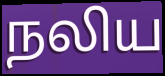
நலிய